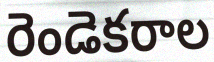
రెండెకరాల